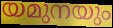
യമുനയും